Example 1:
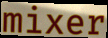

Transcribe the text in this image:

mixer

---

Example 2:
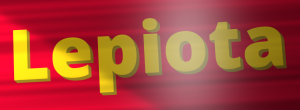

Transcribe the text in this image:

Lepiota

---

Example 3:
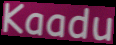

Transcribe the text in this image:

Kaadu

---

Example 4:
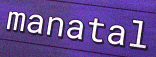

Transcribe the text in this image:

manatal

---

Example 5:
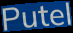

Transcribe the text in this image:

Putel